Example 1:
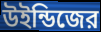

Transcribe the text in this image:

উইন্ডিজের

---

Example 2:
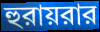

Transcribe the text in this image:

হুরায়রার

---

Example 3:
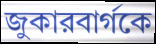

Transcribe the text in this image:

জুকারবার্গকে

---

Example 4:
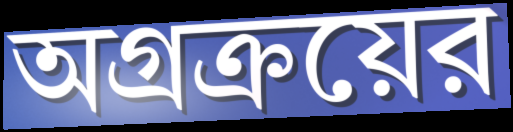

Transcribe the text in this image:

অগ্রক্রয়ের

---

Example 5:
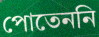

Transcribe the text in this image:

পোতেননি